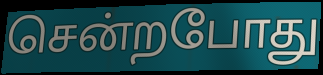
சென்றபோது